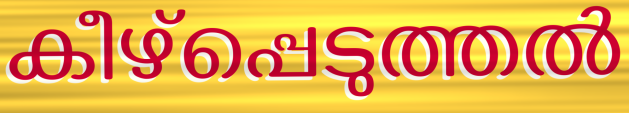
കീഴ്പ്പെടുത്തൽ